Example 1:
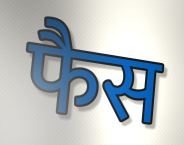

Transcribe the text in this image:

फैस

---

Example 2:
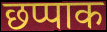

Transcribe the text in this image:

छप्पाक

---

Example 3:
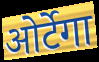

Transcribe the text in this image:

ओर्टेगा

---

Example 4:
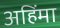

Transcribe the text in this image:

अहिंमा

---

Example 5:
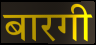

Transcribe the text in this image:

बारगी